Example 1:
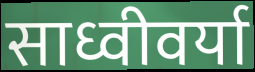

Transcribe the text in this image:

साध्वीवर्या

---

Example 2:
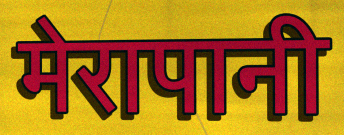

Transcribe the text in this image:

मेरापानी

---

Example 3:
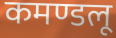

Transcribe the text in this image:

कमण्डलू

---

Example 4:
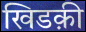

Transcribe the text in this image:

खिडक़ी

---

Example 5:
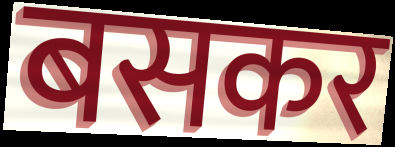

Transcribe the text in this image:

बसकर